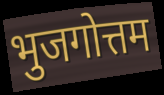
भुजगोत्तम